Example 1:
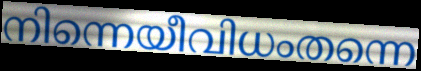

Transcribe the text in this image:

നിന്നെയീവിധംതന്നെ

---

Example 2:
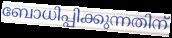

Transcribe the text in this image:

ബോധിപ്പിക്കുന്നതിന്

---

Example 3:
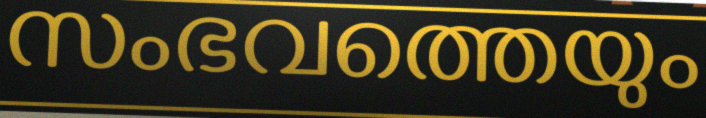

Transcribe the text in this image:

സംഭവത്തെയും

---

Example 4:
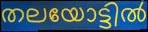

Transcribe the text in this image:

തലയോട്ടിൽ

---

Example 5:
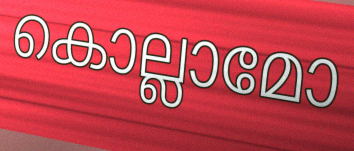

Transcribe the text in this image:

കൊല്ലാമോ